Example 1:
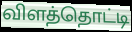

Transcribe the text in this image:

விளத்தொட்டி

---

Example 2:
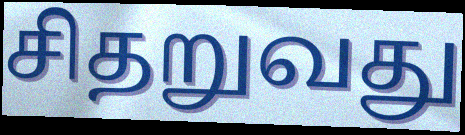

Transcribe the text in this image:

சிதறுவது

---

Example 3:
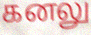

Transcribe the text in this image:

கனலு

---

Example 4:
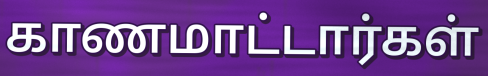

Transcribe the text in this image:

காணமாட்டார்கள்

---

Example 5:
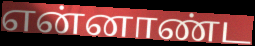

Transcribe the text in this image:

என்னாண்ட